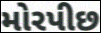
મોરપીછ